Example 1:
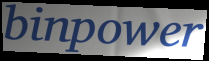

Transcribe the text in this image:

binpower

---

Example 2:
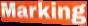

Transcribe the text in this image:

Marking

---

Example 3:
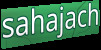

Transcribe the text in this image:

sahajach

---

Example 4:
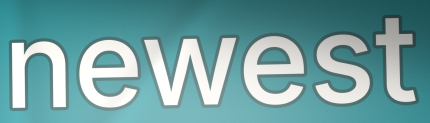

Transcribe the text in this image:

newest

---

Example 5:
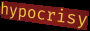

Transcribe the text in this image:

hypocrisy